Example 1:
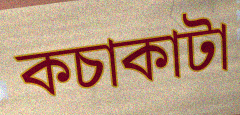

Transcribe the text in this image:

কচাকাটা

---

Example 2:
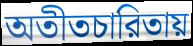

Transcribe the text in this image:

অতীতচারিতায়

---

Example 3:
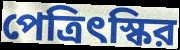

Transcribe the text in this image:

পেত্রিৎস্কির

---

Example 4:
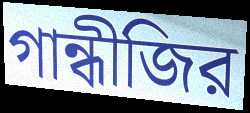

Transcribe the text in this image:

গান্ধীজির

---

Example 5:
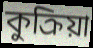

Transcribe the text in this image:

কুক্রিয়া